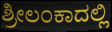
ಶ್ರೀಲಂಕಾದಲ್ಲಿ